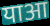
याआ